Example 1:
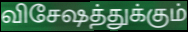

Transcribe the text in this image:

விசேஷத்துக்கும்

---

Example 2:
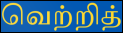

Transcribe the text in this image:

வெற்றித்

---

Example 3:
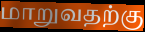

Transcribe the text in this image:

மாறுவதற்கு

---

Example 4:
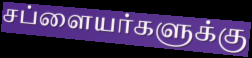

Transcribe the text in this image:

சப்ளையர்களுக்கு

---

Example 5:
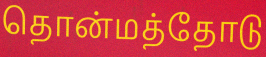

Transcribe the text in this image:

தொன்மத்தோடு